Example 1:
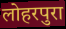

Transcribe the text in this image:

लोहरपुरा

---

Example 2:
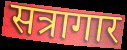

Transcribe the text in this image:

सत्रागार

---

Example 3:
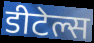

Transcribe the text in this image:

डीटेल्‍स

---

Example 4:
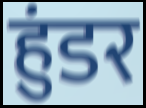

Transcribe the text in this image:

हुंडर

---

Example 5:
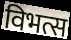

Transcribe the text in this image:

विभत्स